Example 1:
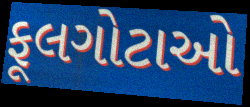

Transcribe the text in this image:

ફૂલગોટાઓ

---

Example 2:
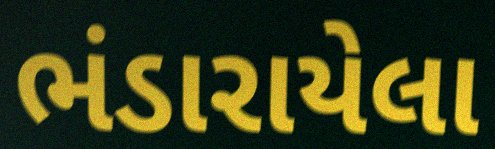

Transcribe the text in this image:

ભંડારાયેલા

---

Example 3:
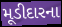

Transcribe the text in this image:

મૂડીદારના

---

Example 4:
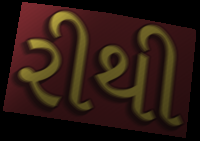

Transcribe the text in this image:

રીથી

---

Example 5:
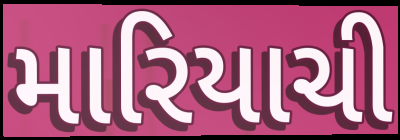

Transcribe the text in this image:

મારિયાચી